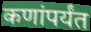
कणांपर्यंत